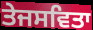
ਤੇਜਸਵਿਤਾ